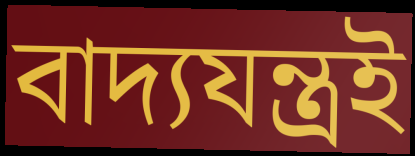
বাদ্যযন্ত্ৰই